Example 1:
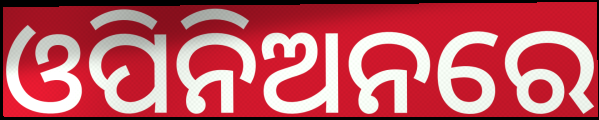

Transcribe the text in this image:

ଓପିନିଅନରେ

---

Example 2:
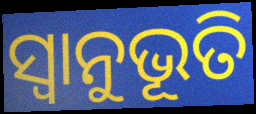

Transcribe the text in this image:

ସ୍ଵାନୁଭୂତି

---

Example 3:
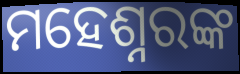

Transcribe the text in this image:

ମହେଶ୍ନରଙ୍କ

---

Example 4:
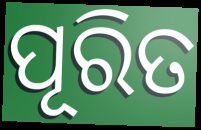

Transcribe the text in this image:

ପୂରିତ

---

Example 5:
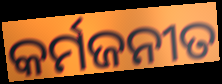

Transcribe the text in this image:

କର୍ମଜନୀତ